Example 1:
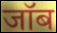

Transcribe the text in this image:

जॉब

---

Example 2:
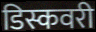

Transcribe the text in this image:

डिस्कवरी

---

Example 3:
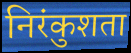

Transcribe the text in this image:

निरंकुशता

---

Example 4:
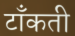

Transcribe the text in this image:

टाँकती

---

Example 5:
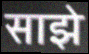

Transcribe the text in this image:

साझे